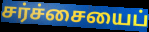
சர்ச்சையைப்